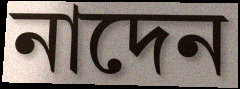
নাদেন